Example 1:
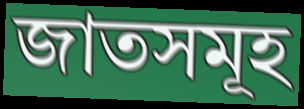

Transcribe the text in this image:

জাতসমূহ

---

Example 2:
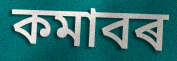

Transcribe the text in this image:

কমাবৰ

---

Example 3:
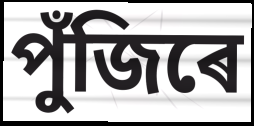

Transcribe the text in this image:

পুঁজিৰে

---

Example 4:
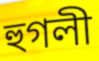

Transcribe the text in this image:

হুগলী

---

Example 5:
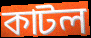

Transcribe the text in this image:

কাটল